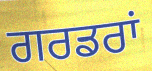
ਗਰਡਰਾਂ